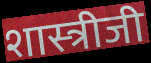
शास्त्रीजी